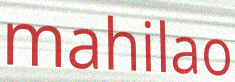
mahilao